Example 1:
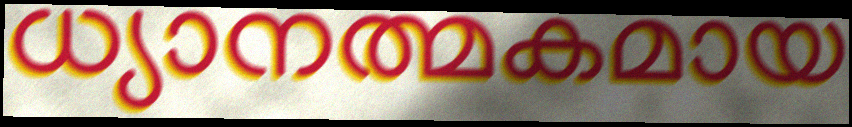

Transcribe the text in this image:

ധ്യാനത്മകമായ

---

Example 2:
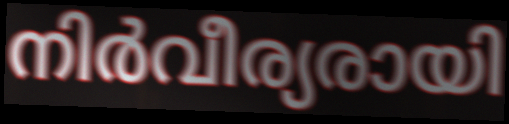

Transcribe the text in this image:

നിർവീര്യരായി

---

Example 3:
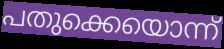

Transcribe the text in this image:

പതുക്കെയൊന്ന്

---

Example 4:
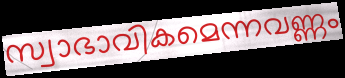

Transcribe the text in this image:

സ്വാഭാവികമെന്നവണ്ണം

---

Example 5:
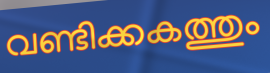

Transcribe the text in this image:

വണ്ടിക്കകത്തും